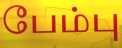
பேம்பு